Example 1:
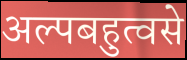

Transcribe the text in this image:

अल्पबहुत्वसे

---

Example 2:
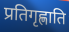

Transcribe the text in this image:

प्रतिगृह्णाति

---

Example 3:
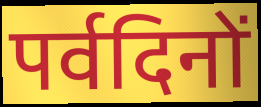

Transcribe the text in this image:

पर्वदिनों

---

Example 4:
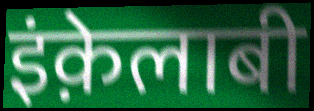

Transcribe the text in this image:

इंक़ेलाबी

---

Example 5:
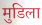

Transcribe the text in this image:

मुडिला